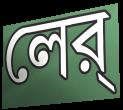
লের্